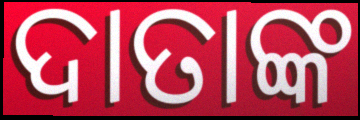
ଦାତାଙ୍କ